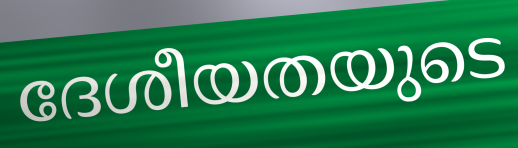
ദേശീയതയുടെ